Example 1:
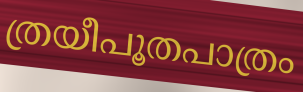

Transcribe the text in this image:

ത്രയീപൂതപാത്രം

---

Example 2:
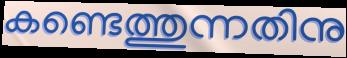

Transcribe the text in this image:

കണ്ടെത്തുന്നതിനു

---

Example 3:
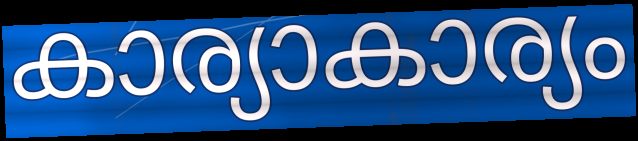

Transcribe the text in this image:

കാര്യാകാര്യം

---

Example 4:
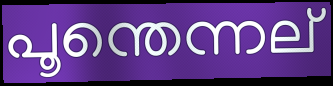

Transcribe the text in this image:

പൂന്തെന്നല്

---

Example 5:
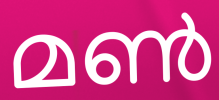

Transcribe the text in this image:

മൺ